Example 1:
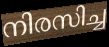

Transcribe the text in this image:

നിരസിച്ച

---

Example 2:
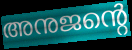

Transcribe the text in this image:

അനുജന്റെ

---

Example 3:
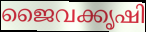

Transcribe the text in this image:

ജൈവക്കൃഷി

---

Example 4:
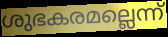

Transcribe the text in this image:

ശുഭകരമല്ലെന്ന്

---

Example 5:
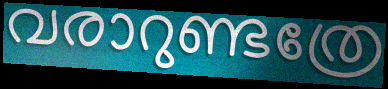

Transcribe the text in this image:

വരാറുണ്ടത്രേ